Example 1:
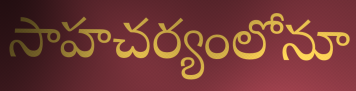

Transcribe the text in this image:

సాహచర్యంలోనూ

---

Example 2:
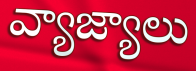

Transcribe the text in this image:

వ్యాజ్యాలు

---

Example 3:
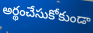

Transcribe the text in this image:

అర్థంచేసుకోకుండా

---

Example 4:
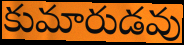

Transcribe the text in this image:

కుమారుడవు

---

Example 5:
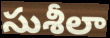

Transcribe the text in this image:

సుశీలా